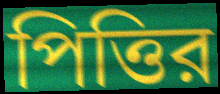
পিত্তির